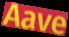
Aave